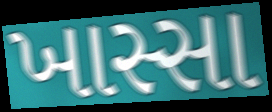
ખાસ્સા